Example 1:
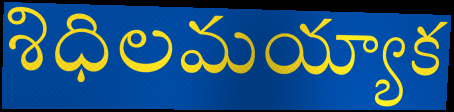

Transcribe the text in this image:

శిధిలమయ్యాక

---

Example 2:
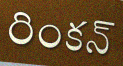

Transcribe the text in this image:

రింకన్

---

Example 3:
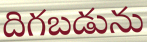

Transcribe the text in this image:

దిగబడును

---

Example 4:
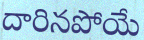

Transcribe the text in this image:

దారినపోయే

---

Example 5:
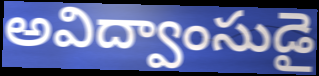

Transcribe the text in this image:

అవిద్వాంసుడై